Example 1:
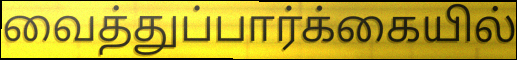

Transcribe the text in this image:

வைத்துப்பார்க்கையில்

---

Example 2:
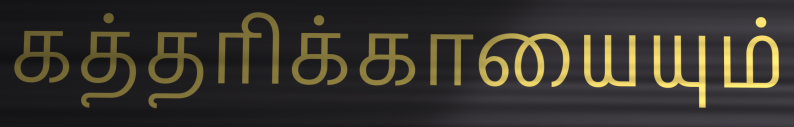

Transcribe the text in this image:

கத்தரிக்காயையும்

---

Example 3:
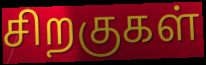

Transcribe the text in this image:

சிறகுகள்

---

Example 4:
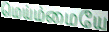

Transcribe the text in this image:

மெய்ம்மையே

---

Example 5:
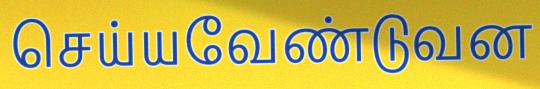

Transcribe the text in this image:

செய்யவேண்டுவன